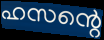
ഹസന്റെ